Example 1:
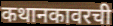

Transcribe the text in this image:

कथानकावरची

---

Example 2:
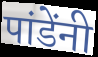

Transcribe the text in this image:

पांडेंनी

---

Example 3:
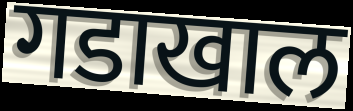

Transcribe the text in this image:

गडाखाल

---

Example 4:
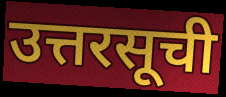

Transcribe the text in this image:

उत्तरसूची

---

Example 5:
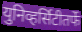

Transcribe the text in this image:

युनिव्हर्सिटीतर्फे